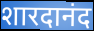
शारदानंद